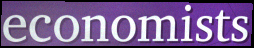
economists